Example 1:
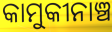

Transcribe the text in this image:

କାମୁକୀନାଞ୍ଚ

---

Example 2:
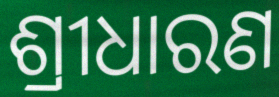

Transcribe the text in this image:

ଶ୍ରୀଧାରଣ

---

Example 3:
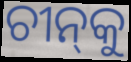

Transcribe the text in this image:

ଚୀନ୍‌କୁ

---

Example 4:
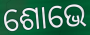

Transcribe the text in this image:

ଶୋଭେ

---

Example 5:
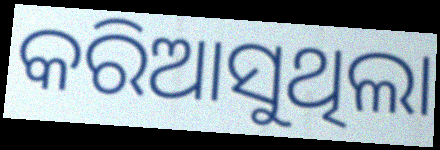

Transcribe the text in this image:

କରିଆସୁଥିଲା